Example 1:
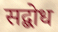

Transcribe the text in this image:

सद्बोध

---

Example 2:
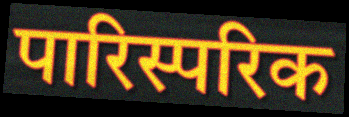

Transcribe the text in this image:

पारिस्परिक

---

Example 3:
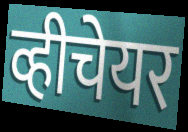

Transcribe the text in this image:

व्हीचेयर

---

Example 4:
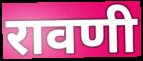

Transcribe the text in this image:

रावणी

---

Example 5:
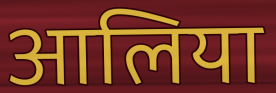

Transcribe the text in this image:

आलिया